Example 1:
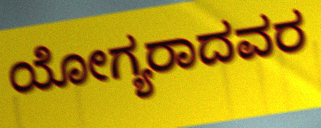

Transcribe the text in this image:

ಯೋಗ್ಯರಾದವರ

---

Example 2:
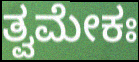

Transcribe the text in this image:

ತ್ವಮೇಕಃ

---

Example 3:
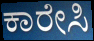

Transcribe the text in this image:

ಕಾರೇಸಿ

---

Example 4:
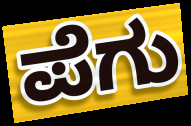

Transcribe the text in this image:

ಪೆಗು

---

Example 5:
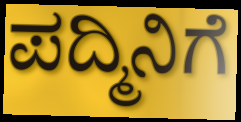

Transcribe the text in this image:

ಪದ್ಮಿನಿಗೆ